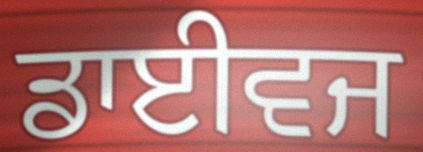
ਡਾਈਵਜ